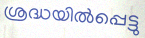
ശ്രദ്ധയിൽപ്പെട്ടു